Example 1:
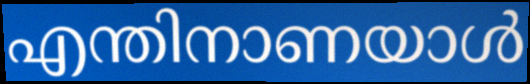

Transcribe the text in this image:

എന്തിനാണയാൾ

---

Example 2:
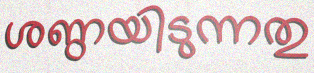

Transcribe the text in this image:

ശണ്ഠയിടുന്നതു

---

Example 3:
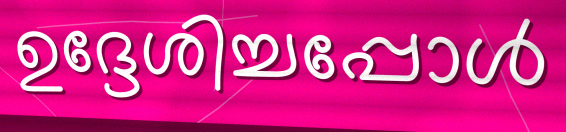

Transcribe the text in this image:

ഉദ്ദേശിച്ചപ്പോൾ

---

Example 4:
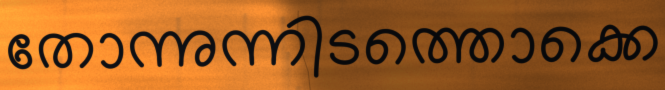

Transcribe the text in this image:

തോന്നുന്നിടത്തൊക്കെ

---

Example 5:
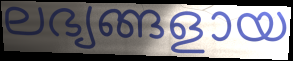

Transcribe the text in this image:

ലഭ്യങ്ങളായ